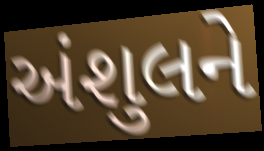
અંશુલને